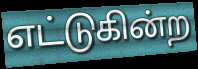
எட்டுகின்ற